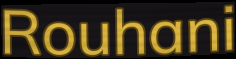
Rouhani